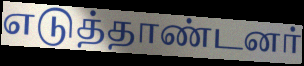
எடுத்தாண்டனர்